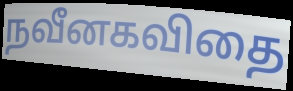
நவீனகவிதை